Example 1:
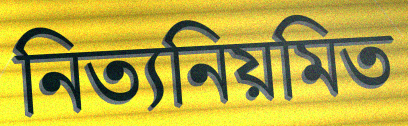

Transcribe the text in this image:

নিত্যনিয়মিত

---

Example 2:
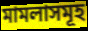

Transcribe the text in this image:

মামলাসমূহ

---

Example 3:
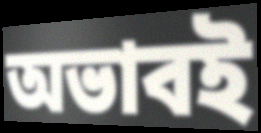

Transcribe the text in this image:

অভাবই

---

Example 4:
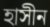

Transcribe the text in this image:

হাসীন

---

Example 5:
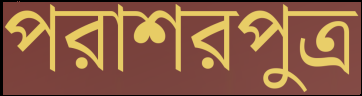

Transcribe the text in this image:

পরাশরপুত্র